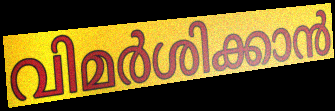
വിമർശിക്കാൻ